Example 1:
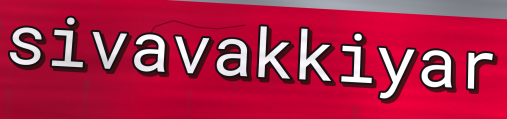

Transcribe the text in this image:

sivavakkiyar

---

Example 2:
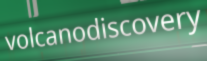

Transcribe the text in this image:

volcanodiscovery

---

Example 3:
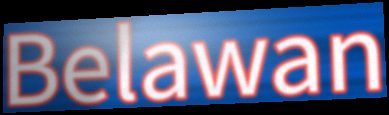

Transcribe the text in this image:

Belawan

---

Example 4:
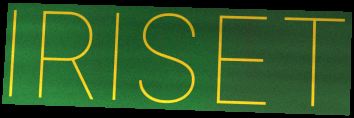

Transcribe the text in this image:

IRISET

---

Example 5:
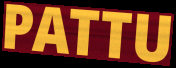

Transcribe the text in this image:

PATTU